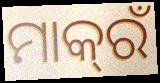
ମାକ୍‌ରଁ